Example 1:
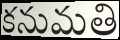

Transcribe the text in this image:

కనుమతి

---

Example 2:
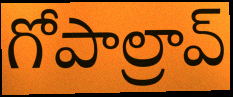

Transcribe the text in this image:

గోపాల్రావ్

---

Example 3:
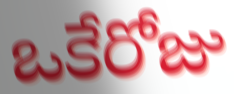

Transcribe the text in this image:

ఒకేరోజు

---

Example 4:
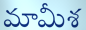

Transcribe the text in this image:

మామీశ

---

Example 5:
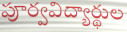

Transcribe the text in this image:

పూర్వవిద్యార్థుల